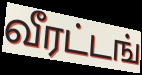
வீரட்டங்